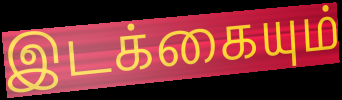
இடக்கையும்